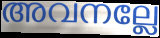
അവനല്ലേ